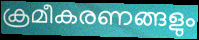
ക്രമീകരണങ്ങളും